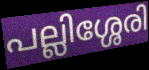
പല്ലിശ്ശേരി